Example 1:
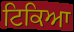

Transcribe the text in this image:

ਟਿਕਿਆ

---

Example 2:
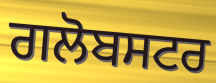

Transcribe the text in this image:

ਗਲੋਬਸਟਰ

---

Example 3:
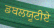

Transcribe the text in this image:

ਡਬਲਯੂਟੀਏ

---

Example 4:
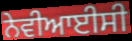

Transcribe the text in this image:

ਨੇਵੀਆਈਸੀ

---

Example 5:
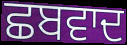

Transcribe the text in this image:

ਛਬਵਾਦ